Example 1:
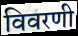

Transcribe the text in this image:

विवरणी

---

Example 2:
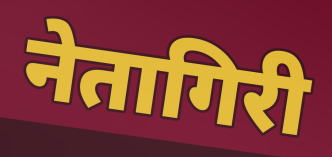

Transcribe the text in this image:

नेतागिरी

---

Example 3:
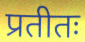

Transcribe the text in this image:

प्रतीतः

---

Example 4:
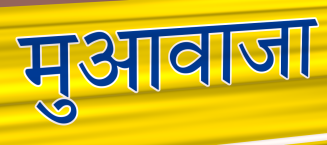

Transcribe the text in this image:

मुआवाजा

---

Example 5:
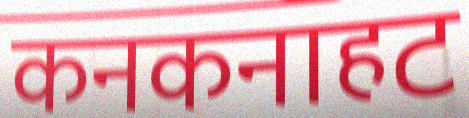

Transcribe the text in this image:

कनकनाहट